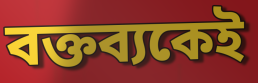
বক্তব্যকেই